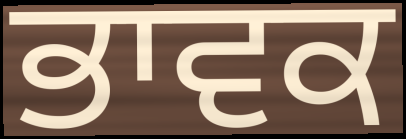
ਭਾਵਕ